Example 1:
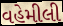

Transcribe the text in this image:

વહેમીલી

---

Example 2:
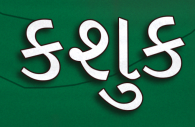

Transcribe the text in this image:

કશુક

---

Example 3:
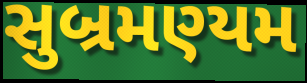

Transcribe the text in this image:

સુબ્રમણ્યમ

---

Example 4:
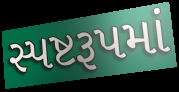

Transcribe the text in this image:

સ્પષ્ટરૂપમાં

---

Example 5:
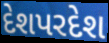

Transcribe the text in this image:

દેશપરદેશ